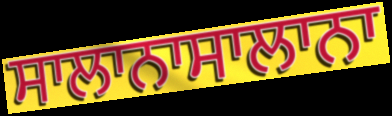
ਸਾਲਾਨਾਸਾਲਾਨਾ